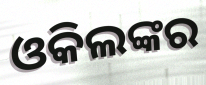
ଓକିଲଙ୍କର